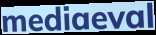
mediaeval